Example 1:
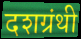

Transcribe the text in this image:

दशग्रंथी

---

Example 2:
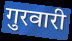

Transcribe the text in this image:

गुरवारी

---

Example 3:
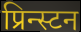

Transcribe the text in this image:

प्रिन्स्टन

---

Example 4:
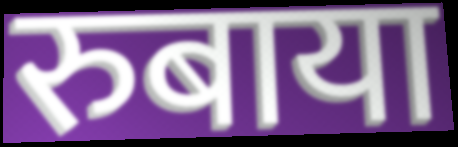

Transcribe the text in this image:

रुबाया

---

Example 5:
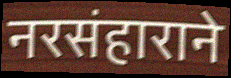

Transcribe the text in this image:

नरसंहाराने